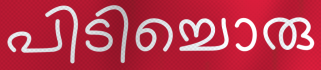
പിടിച്ചൊരു